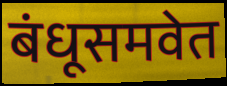
बंधूसमवेत